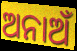
ଅନାଅଁ